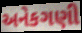
અનેકગણી